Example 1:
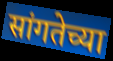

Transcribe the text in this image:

सांगतेच्या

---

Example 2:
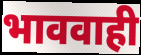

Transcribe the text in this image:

भाववाही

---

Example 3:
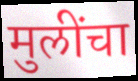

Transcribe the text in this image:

मुलींचा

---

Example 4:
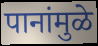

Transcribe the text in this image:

पानांमुळे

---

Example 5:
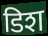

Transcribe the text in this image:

डिश